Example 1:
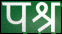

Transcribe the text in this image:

पश्र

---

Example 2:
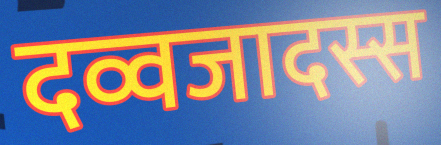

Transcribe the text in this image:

दव्वजादस्स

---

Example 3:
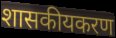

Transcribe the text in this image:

शासकीयकरण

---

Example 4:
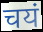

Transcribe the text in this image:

चयं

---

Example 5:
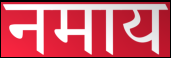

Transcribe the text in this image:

नमाय